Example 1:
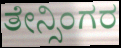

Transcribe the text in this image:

ತೇನ್ಸಿಂಗರ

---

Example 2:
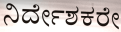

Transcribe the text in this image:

ನಿರ್ದೇಶಕರೇ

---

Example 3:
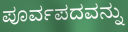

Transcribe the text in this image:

ಪೂರ್ವಪದವನ್ನು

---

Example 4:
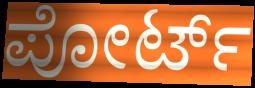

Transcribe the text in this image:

ಪೋರ್ಟ್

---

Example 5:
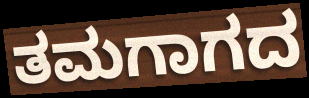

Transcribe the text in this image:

ತಮಗಾಗದ